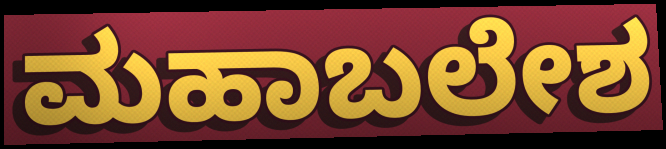
ಮಹಾಬಲೇಶ